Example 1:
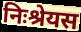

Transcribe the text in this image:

निःश्रेयस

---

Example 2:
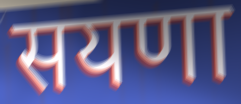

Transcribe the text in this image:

सयणा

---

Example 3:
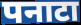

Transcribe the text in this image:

पनाटा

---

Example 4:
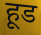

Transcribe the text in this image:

हूड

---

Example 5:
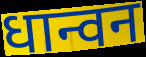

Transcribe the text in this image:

धान्वन